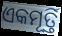
ଏକମୂର୍ତ୍ତି